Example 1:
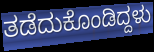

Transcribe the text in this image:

ತಡೆದುಕೊಂಡಿದ್ದಳು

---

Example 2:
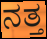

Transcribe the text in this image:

ನತ್ತ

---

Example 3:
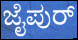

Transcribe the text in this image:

ಜೈಪುರ್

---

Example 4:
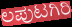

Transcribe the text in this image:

ಲಪುಟಗಿರಿ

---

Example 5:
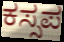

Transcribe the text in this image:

ಕಸ್ಸಪ